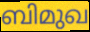
ബിമുഖ